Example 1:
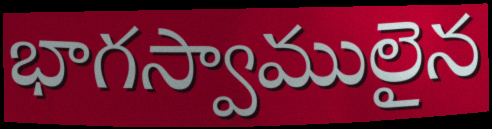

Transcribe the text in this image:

భాగస్వాములైన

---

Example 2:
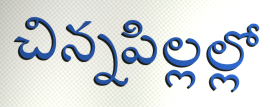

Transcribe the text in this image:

చిన్నపిల్లల్లో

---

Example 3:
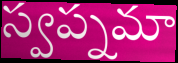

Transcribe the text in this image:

స్వప్నమా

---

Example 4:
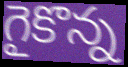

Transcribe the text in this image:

గైకొన్న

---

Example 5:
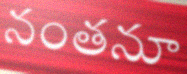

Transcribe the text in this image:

నంతనూ